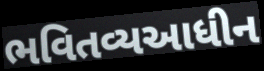
ભવિતવ્યઆધીન